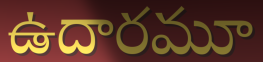
ఉదారమూ